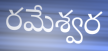
రమేశ్వర